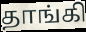
தாங்கி